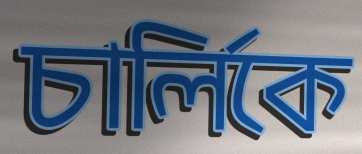
চার্লিকে